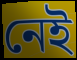
নেই